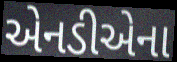
એનડીએના